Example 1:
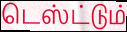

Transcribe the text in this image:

டெஸ்ட்டும்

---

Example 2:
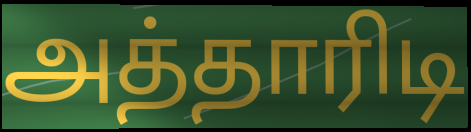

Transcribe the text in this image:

அத்தாரிடி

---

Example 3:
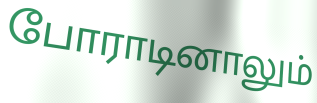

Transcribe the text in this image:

போராடினாலும்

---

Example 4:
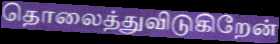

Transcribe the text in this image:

தொலைத்துவிடுகிறேன்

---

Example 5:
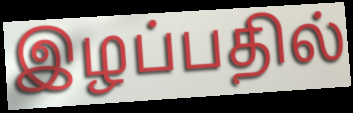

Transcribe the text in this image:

இழப்பதில்